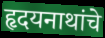
हृदयनाथांचे